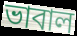
ভাবাল